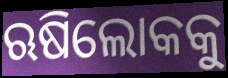
ଋଷିଲୋକକୁ